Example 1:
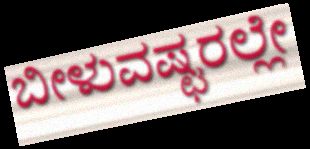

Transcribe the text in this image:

ಬೀಳುವಷ್ಟರಲ್ಲೇ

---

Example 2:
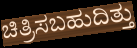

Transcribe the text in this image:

ಚಿತ್ರಿಸಬಹುದಿತ್ತು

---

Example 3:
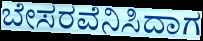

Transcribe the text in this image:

ಬೇಸರವೆನಿಸಿದಾಗ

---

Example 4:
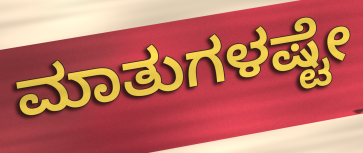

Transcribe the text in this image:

ಮಾತುಗಳಷ್ಟೇ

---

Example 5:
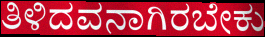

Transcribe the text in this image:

ತಿಳಿದವನಾಗಿರಬೇಕು